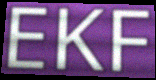
EKF